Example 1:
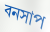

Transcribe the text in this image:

বনসাপ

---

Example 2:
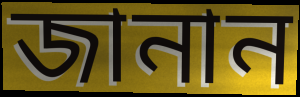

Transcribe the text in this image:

জানান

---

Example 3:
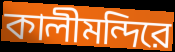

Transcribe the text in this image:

কালীমন্দিরে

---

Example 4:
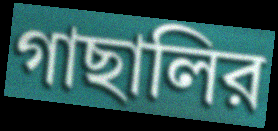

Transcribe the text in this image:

গাছালির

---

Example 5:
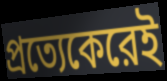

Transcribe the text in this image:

প্রত্যেকেরেই